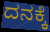
ದನಕ್ಕೆ